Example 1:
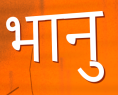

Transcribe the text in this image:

भानु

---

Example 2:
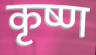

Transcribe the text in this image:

कृष्ण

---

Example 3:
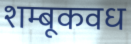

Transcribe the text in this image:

शम्बूकवध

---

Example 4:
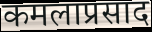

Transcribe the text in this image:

कमलाप्रसाद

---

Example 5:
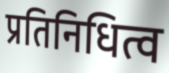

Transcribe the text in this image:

प्रतिनिधित्व